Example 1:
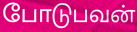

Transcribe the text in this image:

போடுபவன்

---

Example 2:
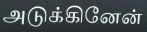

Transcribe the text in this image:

அடுக்கினேன்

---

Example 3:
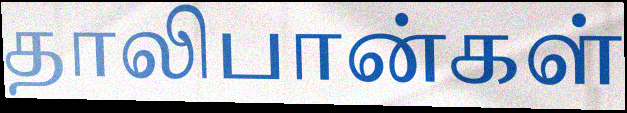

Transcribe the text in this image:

தாலிபான்கள்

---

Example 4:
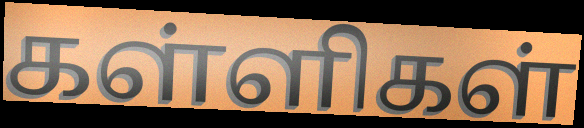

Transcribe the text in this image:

கள்ளிகள்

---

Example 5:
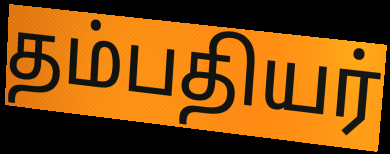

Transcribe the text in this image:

தம்பதியர்